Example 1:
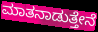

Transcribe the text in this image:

ಮಾತನಾಡುತ್ತೇನೆ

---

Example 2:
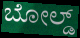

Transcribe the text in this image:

ಬೋಲ್ಡ್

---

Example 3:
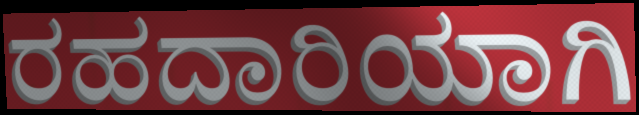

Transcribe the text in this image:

ರಹದಾರಿಯಾಗಿ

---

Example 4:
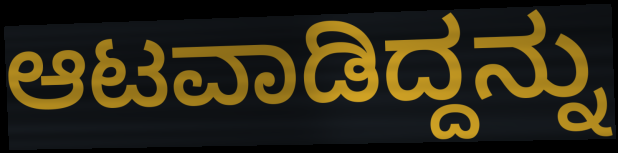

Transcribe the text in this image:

ಆಟವಾಡಿದ್ದನ್ನು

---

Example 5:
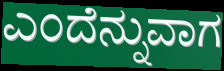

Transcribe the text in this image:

ಎಂದೆನ್ನುವಾಗ